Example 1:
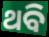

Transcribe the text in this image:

ଥବି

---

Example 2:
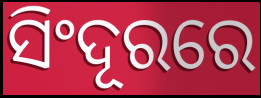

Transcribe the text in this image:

ସିଂଦୂରରେ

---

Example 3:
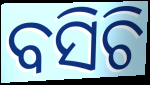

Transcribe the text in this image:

ବସିଚି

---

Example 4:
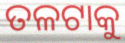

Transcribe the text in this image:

ତଳଟାକୁ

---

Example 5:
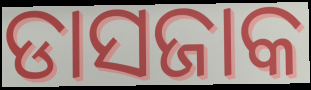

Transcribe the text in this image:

ଡାସଜାକ